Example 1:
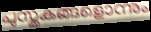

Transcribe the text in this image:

പുസ്തകങ്ങളൊന്നും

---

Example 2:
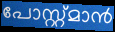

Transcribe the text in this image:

പോസ്റ്റ്മാൻ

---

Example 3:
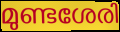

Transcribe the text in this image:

മുണ്ടശേരി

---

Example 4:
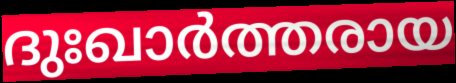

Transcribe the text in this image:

ദുഃഖാർത്തരായ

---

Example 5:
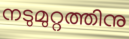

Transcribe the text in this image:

നടുമുറ്റത്തിനു